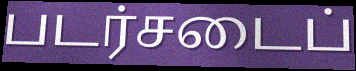
படர்சடைப்